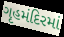
ગૃહમંદિરમાં